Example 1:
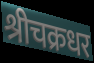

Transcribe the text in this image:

श्रीचक्रधर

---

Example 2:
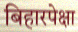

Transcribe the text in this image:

बिहारपेक्षा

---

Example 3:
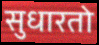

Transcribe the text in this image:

सुधारतो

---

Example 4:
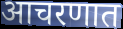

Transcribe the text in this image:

आचरणात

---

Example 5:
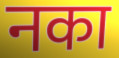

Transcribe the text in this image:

नका